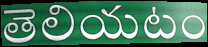
తెలియటం